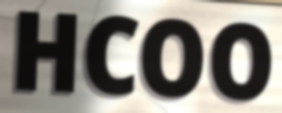
HCOO